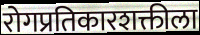
रोगप्रतिकारशक्तीला